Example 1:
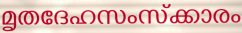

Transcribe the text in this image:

മൃതദേഹസംസ്‌ക്കാരം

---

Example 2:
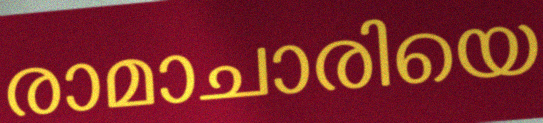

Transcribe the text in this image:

രാമാചാരിയെ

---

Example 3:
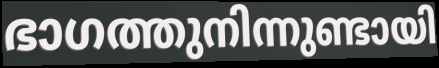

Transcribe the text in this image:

ഭാഗത്തുനിന്നുണ്ടായി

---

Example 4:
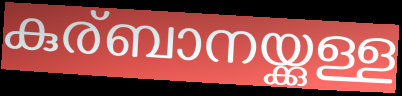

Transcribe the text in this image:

കുര്ബാനയ്ക്കുള്ള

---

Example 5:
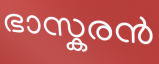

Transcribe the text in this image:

ഭാസ്കരൻ